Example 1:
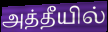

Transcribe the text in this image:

அத்தீயில்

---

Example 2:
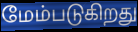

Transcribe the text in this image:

மேம்படுகிறது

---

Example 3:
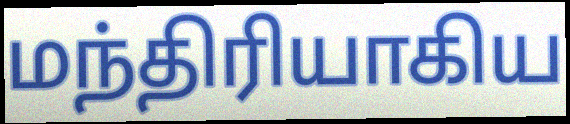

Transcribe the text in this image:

மந்திரியாகிய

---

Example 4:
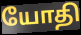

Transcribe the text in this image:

யோதி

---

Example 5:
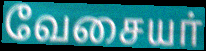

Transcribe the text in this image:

வேசையர்